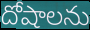
దోషాలను